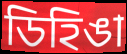
ডিহিঙা